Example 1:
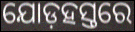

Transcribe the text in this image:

ଯୋଡ଼ହସ୍ତରେ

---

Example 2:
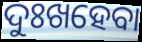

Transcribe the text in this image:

ଦୁଃଖହେବା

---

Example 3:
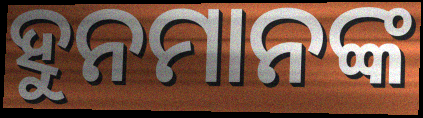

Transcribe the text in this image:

ହୁନମାନଙ୍କ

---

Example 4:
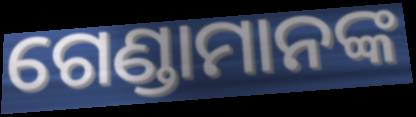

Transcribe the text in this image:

ଗେଣ୍ଡାମାନଙ୍କ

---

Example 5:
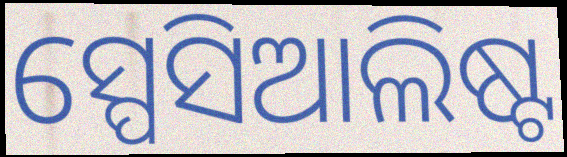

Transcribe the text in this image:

ସ୍ପେସିଆଲିଷ୍ଟ